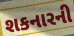
શકનારની